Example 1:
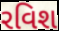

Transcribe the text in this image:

રવિશ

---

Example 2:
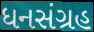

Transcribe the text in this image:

ધનસંગ્રહ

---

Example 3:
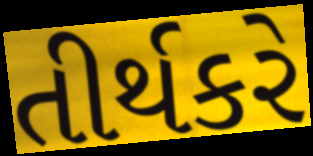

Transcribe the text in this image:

તીર્થકરે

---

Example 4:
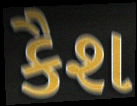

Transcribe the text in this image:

કૈશ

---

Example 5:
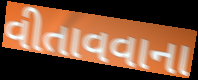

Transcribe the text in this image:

વીતાવવાના